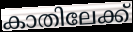
കാതിലേക്ക്